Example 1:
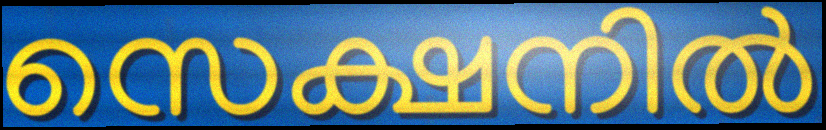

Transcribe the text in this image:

സെക്ഷനിൽ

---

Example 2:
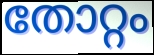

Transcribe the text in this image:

തോറ്റം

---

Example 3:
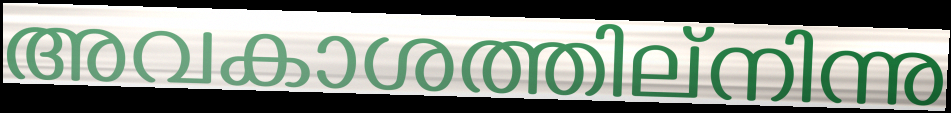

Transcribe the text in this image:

അവകാശത്തില്നിന്നു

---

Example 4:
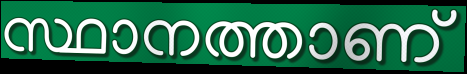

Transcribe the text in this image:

സ്ഥാനത്താണ്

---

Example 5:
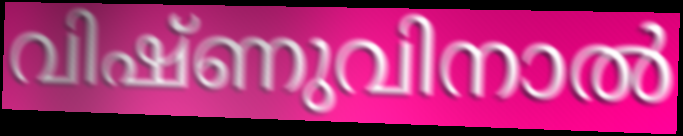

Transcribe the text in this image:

വിഷ്ണുവിനാൽ